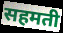
सहमती